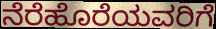
ನೆರೆಹೊರೆಯವರಿಗೆ